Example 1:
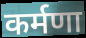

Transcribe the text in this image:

कर्मणा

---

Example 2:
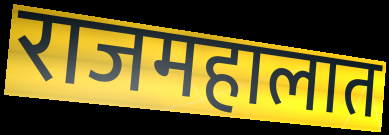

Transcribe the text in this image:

राजमहालात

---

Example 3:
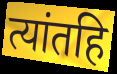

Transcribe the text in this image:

त्यांतहि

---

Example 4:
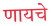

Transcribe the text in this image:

णायचे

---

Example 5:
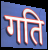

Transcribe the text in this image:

गति